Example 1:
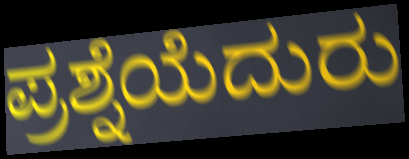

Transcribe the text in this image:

ಪ್ರಶ್ನೆಯೆದುರು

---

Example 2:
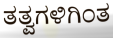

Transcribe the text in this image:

ತತ್ವಗಳಿಗಿಂತ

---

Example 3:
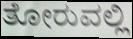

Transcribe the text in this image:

ತೋರುವಲ್ಲಿ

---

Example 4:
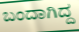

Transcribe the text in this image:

ಬಂದಾಗಿದ್ದ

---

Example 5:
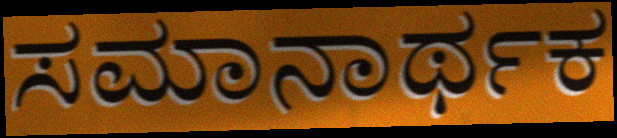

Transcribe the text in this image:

ಸಮಾನಾರ್ಥಕ